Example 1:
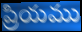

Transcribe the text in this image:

ప్రియము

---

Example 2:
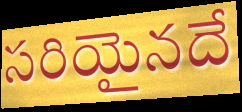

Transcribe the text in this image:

సరియైనదే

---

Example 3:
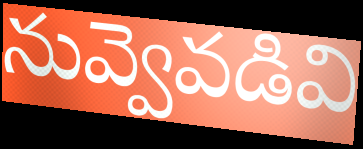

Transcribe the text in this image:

నువ్వెవడివి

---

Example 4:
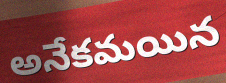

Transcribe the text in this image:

అనేకమయిన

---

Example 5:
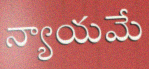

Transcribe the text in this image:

న్యాయమే